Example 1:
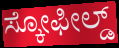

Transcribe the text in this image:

ಸ್ಕೋಫೀಲ್ಡ್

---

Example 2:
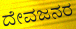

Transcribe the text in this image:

ದೇವಜನರ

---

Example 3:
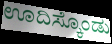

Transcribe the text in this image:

ಊದಿಸ್ಕೊಂಡು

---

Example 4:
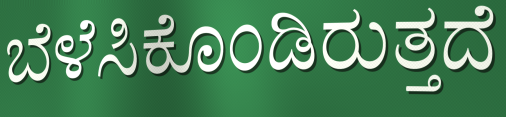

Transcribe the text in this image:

ಬೆಳೆಸಿಕೊಂಡಿರುತ್ತದೆ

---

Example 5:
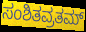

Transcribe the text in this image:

ಸಂಶಿತವ್ರತಮ್